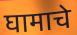
घामाचे